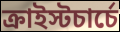
ক্রাইস্টচার্চে